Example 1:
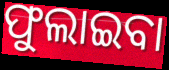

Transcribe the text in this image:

ଫୁଲାଇବା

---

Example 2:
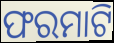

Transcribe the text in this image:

ଫରମାଟି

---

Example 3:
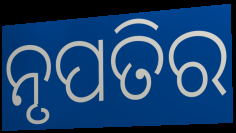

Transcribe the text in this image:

ନୃପତିର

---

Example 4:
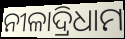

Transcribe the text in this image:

ନୀଳାଦ୍ରିଧାମ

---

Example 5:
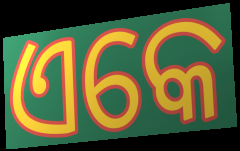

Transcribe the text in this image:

ଏକେ